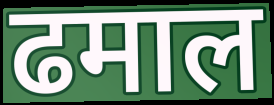
ढमाल